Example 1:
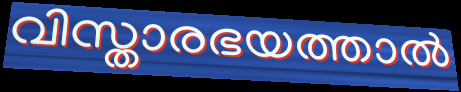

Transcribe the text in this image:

വിസ്താരഭയത്താൽ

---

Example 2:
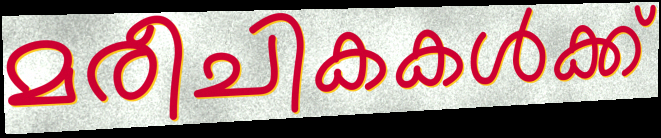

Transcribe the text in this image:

മരീചികകൾക്ക്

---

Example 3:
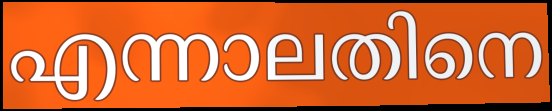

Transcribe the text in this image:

എന്നാലതിനെ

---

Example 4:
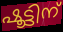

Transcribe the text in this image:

ഷൂട്ടിന്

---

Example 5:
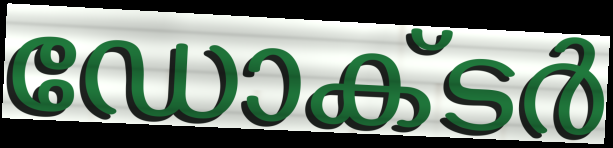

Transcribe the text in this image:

ഡോക്‌ടർ